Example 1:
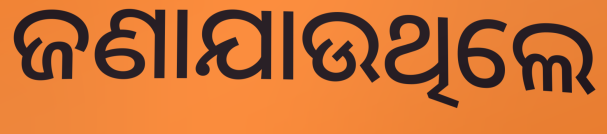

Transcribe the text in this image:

ଜଣାଯାଉଥିଲେ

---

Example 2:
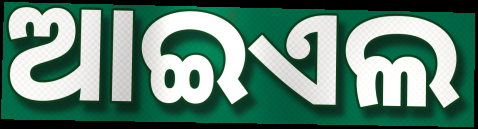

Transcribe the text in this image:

ଆଇଏଲ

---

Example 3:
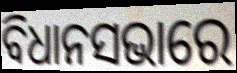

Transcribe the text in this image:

ବିଧାନସଭାରେ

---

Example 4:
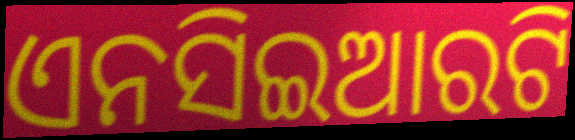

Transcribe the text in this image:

ଏନସିଇଆରଟି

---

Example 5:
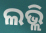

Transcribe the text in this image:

ଲଭ୍ଲି